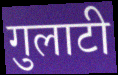
गुलाटी